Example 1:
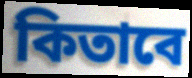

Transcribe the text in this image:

কিতাবে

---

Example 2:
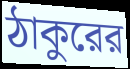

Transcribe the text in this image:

ঠাকুরের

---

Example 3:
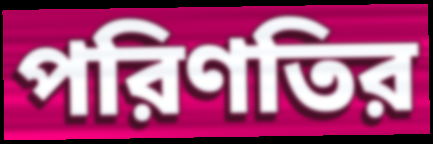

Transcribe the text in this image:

পরিণতির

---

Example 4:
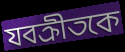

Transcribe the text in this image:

যবক্রীতকে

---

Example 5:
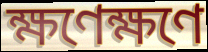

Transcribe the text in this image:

ক্ষণেক্ষণে